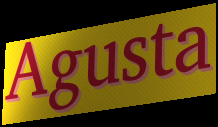
Agusta